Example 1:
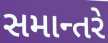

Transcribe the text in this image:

સમાન્તરે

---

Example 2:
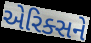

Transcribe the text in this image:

એરિક્સને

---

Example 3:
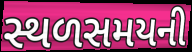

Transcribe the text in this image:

સ્થળસમયની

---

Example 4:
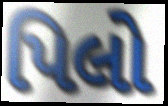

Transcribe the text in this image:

પિલો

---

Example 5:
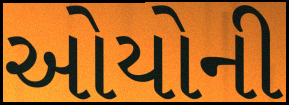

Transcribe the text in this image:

ઓયોની